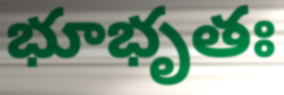
భూభృతః